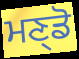
ਮਣ੍ਡੋ